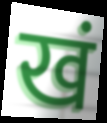
खं